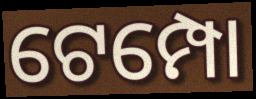
ଟେମ୍ପୋ